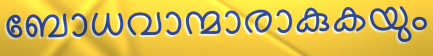
ബോധവാന്മാരാകുകയും